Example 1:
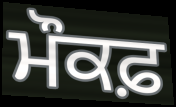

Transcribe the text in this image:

ਮੌਕਫ਼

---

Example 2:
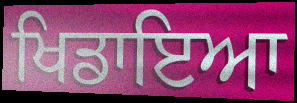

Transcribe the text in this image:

ਖਿਡਾਇਆ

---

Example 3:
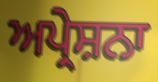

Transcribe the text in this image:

ਅਪ੍ਰੇਸ਼ਨਾ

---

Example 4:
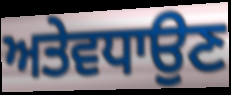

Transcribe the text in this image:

ਅਤੇਵਧਾਉਣ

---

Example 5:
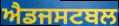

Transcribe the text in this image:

ਐਡਜਸਟਬਲ